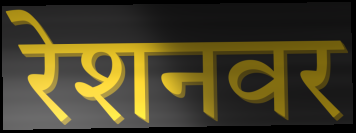
रेशनवर